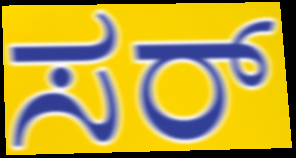
ಸರ್